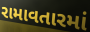
રામાવતારમાં